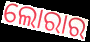
ଲୋରାର